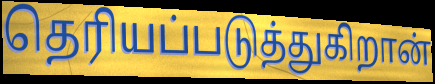
தெரியப்படுத்துகிறான்